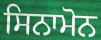
ਸਿਨਾਮੋਨ